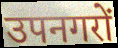
उपनगरों